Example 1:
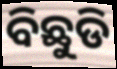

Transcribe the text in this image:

ବିଛୁଡି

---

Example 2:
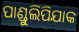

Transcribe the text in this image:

ପାଣ୍ଡୁଲିପିଯାକ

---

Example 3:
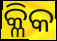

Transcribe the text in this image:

କ୍ଳିକ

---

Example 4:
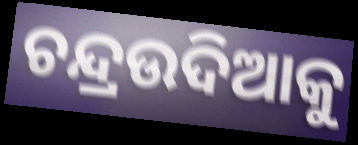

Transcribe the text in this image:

ଚନ୍ଦ୍ରଉଦିଆକୁ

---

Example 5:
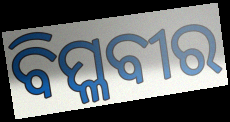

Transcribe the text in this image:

ବିପ୍ଳବୀର